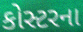
કોસ્ટરના